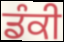
ਡੰਕੀ